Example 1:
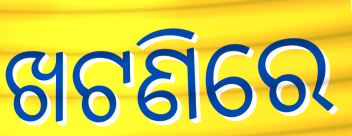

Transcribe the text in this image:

ଖଟଣିରେ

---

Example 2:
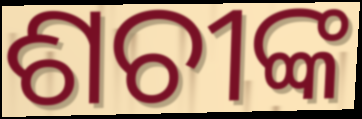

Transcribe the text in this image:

ଶଚୀଙ୍କ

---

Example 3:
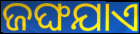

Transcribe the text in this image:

ଜଙ୍ଘଯାଏ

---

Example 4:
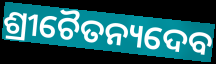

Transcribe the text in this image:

ଶ୍ରୀଚୈତନ୍ୟଦେବ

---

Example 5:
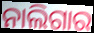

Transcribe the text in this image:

ନାଲିଗାର